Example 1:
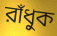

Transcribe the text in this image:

রাঁধুক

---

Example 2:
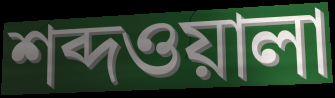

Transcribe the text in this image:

শব্দওয়ালা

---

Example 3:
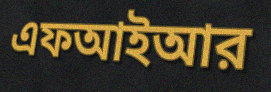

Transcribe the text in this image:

এফআইআর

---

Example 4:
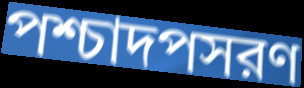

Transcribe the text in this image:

পশ্চাদপসরণ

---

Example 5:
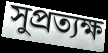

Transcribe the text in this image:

সুপ্রত্যক্ষ